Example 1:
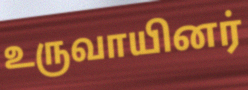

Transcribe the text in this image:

உருவாயினர்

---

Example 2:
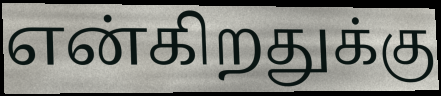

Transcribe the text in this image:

என்கிறதுக்கு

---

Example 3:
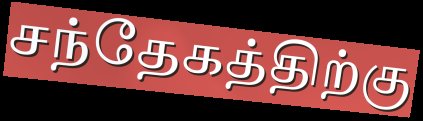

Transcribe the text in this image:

சந்தேகத்திற்கு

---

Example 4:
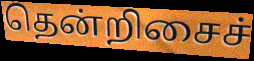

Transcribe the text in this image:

தென்றிசைச்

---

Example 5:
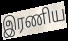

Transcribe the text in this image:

இரணிய